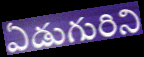
ఏడుగురిని